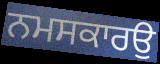
ਨਮਸਕਾਰਉ